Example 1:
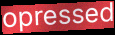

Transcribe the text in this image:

opressed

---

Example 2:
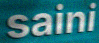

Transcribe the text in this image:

saini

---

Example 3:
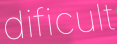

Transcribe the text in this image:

dificult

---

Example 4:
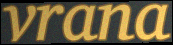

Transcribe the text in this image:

vrana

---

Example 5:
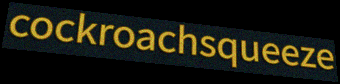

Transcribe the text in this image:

cockroachsqueeze